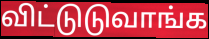
விட்டுடுவாங்க